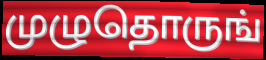
முழுதொருங்